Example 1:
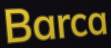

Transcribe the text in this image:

Barca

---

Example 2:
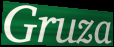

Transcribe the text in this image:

Gruza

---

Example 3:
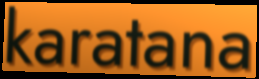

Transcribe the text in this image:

karatana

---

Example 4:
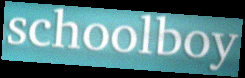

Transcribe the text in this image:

schoolboy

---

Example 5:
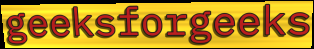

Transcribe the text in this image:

geeksforgeeks